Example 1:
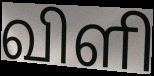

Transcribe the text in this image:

விளி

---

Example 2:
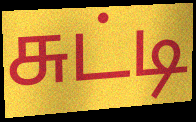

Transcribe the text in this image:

சுட்டி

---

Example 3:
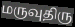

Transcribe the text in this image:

மருவுதிரு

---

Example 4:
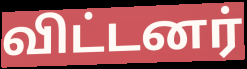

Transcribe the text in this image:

விட்டனர்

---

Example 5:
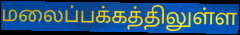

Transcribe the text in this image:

மலைப்பக்கத்திலுள்ள